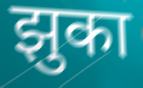
झुका